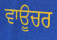
ਵਾਊਚਰ